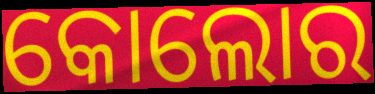
କୋଲୋର